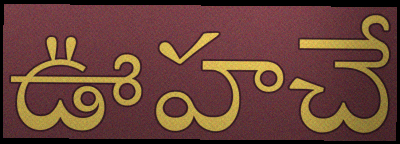
ఊహచే